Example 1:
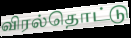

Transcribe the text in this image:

விரல்தொட்டு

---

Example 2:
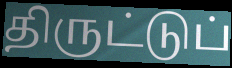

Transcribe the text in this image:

திருட்டுப்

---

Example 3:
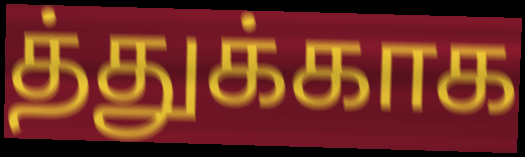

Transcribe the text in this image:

த்துக்காக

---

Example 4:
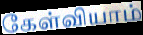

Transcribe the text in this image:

கேள்வியாம்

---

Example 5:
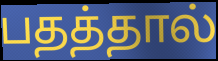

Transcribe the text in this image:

பதத்தால்